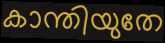
കാന്തിയുതേ